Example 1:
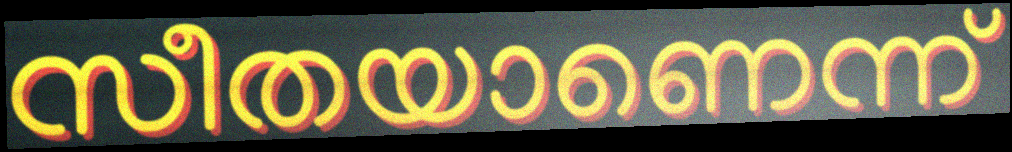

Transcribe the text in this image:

സീതയാണെന്ന്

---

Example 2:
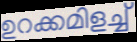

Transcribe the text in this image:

ഉറക്കമിളച്ച്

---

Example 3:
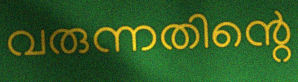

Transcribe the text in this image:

വരുന്നതിന്റെ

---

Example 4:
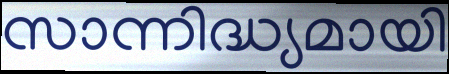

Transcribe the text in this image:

സാന്നിദ്ധ്യമായി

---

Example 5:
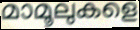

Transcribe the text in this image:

മാമൂലുകളെ